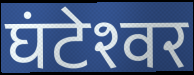
घंटेश्वर